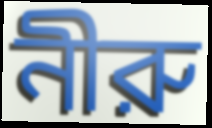
নীরু